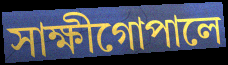
সাক্ষীগোপালে